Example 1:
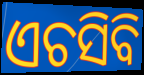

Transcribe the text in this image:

ଏଚସିବି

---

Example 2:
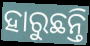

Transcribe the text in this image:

ହାରୁଛନ୍ତି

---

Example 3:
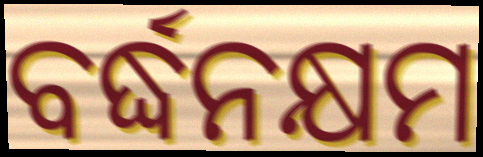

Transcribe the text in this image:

ବର୍ଦ୍ଧନକ୍ଷମ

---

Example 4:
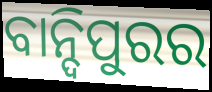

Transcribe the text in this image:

ବାନ୍ଦିପୁରର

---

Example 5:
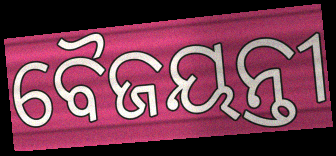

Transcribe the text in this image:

ବୈଜୟନ୍ତୀ